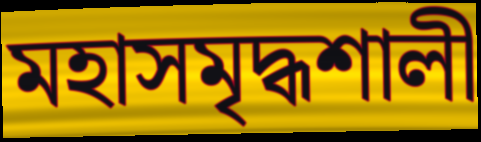
মহাসমৃদ্ধশালী